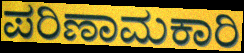
ಪರಿಣಾಮಕಾರಿ